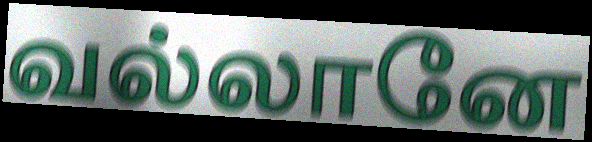
வல்லானே